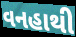
વનહાથી